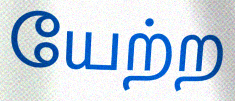
யேற்ற